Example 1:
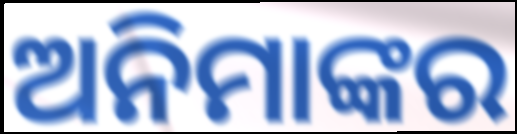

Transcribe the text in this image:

ଅନିମାଙ୍କର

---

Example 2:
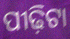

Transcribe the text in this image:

ପୀଢ଼ିଟା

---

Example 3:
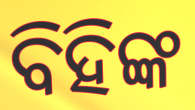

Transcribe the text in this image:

ବିହିଙ୍କ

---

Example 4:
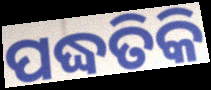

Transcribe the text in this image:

ପଦ୍ଧତିକି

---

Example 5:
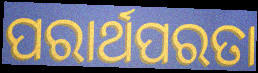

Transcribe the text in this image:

ପରାର୍ଥପରତା